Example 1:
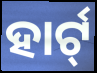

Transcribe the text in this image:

ହାର୍ଟ୍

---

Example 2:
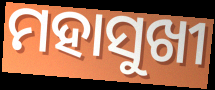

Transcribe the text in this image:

ମହାସୁଖୀ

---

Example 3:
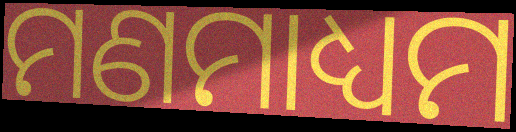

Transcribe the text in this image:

ମଣମାଧ୍ୟମ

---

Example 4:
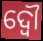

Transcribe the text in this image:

ଦ୍ଵୌ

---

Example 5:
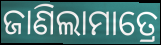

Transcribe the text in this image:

ଜାଣିଲାମାତ୍ରେ